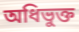
অধিভুক্ত